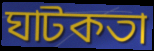
ঘাটকতা